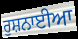
ਰੁਸ਼ਨਾਈਆ